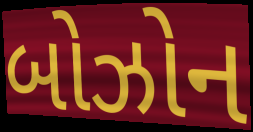
બોઝોન